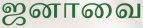
ஜனாவை